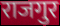
राजगुर